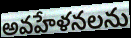
అవహేళనలను